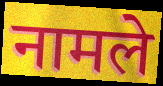
नामले